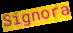
Signora